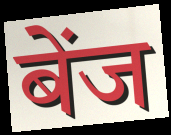
बेंज